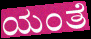
ಯಂತೆ